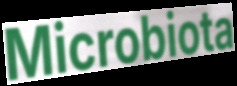
Microbiota